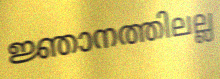
ജ്ഞാനത്തിലല്ല